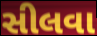
સીલવા